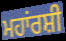
ਮਹਾਂਰਸ਼ੀ